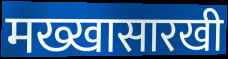
मख्खासारखी